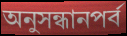
অনুসন্ধানপর্ব